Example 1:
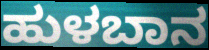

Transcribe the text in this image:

ಹುಳಬಾನ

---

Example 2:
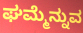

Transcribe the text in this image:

ಘಮ್ಮೆನ್ನುವ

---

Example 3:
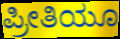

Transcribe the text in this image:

ಪ್ರೀತಿಯೂ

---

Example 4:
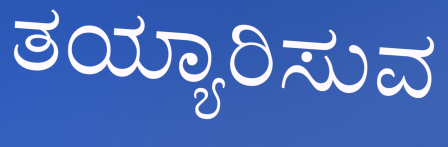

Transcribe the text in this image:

ತಯ್ಯಾರಿಸುವ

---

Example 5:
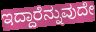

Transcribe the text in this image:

ಇದ್ದಾರೆನ್ನುವುದೇ